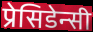
प्रेसिडेन्सी